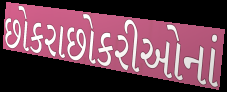
છોકરાછોકરીઓનાં